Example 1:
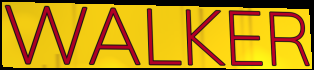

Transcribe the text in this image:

WALKER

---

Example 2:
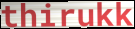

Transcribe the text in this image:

thirukk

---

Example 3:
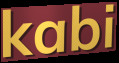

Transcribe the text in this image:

kabi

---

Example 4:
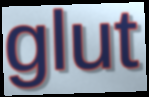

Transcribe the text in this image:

glut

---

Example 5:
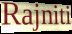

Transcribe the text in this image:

Rajniti